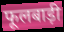
फूलबाड़ी